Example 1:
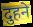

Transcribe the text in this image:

दुहने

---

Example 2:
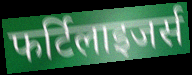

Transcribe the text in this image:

फर्टिलाइजर्स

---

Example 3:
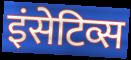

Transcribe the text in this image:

इंसेटिव्स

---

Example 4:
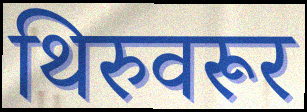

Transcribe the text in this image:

थिरुवरूर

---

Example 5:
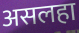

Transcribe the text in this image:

असलहा